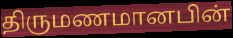
திருமணமானபின்